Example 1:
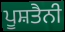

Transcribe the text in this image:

ਪੂਸ਼ਤੈਨੀ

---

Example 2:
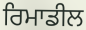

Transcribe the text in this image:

ਰਿਮਾਡੀਲ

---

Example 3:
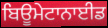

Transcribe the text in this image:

ਬਿਊਮੇਟਾਨਾਈਡ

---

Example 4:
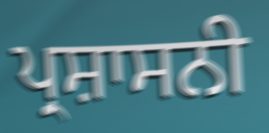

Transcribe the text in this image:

ਪ੍ਰਸ਼ਾਸਨੀ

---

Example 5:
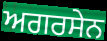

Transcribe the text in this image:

ਅਗਰਸੇਨ